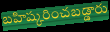
బహిష్కరించబడ్డారు